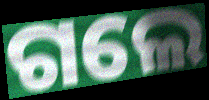
ଗଲେ